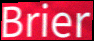
Brier